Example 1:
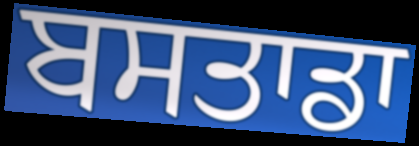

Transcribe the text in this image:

ਬਸਤਾਡਾ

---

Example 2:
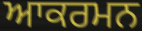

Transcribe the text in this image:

ਆਕਰਮਨ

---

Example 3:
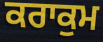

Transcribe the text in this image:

ਕਰਾਕੁਮ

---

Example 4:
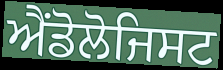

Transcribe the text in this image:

ਐਂਡੋਲੋਜਿਸਟ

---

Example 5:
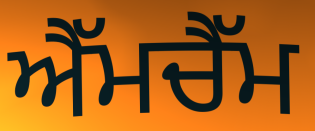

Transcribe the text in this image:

ਐੱਮਚੈੱਮ